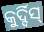
କୁର୍ଦ୍ଦିସ୍